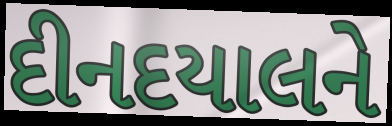
દીનદયાલને